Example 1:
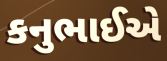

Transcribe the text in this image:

કનુભાઈએ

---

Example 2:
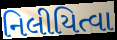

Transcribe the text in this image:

નિલીયિત્વા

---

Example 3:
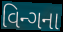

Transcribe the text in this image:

વિન્ગના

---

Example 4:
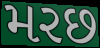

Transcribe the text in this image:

મરછ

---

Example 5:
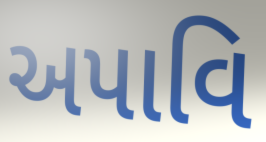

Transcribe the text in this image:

અપાવિ